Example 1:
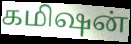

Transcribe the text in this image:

கமிஷன்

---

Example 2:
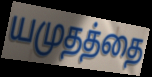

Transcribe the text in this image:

யமுதத்தை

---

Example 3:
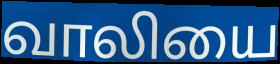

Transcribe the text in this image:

வாலியை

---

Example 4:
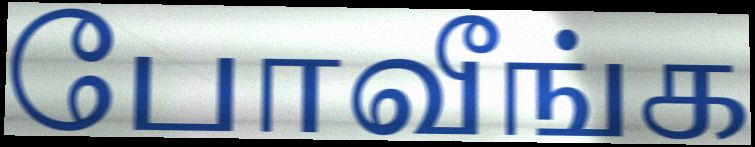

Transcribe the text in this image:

போவீங்க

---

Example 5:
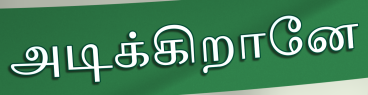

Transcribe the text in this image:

அடிக்கிறானே